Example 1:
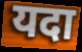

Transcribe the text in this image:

यदा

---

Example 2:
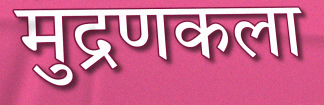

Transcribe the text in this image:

मुद्रणकला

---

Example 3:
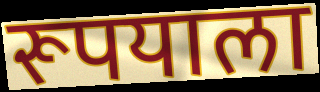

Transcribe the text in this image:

रूपयाला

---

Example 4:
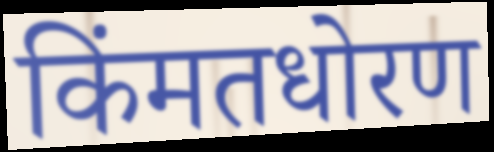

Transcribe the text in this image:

किंमतधोरण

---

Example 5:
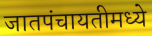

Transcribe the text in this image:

जातपंचायतीमध्ये